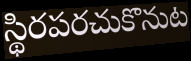
స్థిరపరచుకొనుట